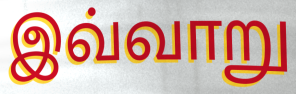
இவ்வாறு